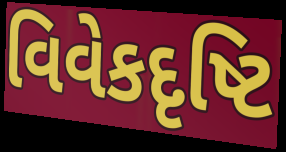
વિવેકદૃષ્ટિ